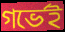
গর্ভেই